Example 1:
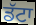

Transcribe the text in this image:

ਡੱਟਾ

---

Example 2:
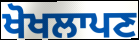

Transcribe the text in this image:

ਖੋਖਲਾਪਣ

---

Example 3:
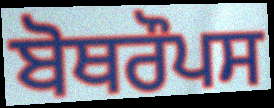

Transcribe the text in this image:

ਬੋਥਰੌਪਸ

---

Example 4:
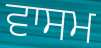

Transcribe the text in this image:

ਵਾਸਮ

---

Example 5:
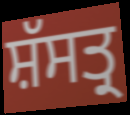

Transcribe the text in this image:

ਸ਼ੱਸਤ੍ਰ